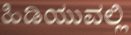
ಹಿಡಿಯುವಲ್ಲಿ